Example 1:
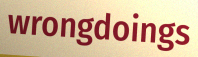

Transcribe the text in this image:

wrongdoings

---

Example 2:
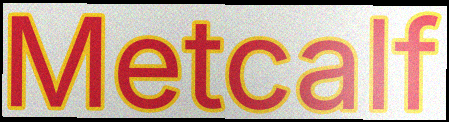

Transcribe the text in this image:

Metcalf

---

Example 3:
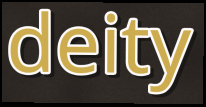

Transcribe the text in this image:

deity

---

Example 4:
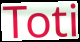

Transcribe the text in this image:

Toti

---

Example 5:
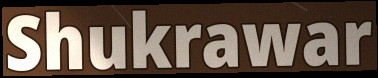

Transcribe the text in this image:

Shukrawar